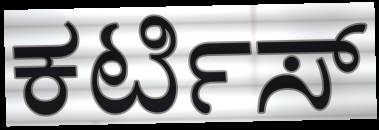
ಕರ್ಟಿಸ್